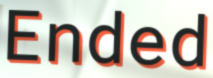
Ended